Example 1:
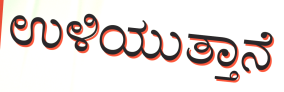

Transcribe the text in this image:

ಉಳಿಯುತ್ತಾನೆ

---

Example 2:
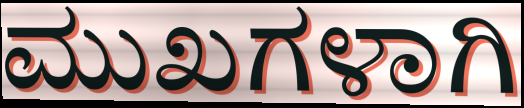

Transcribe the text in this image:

ಮುಖಗಳಾಗಿ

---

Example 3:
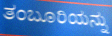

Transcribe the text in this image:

ತಂಬೂರಿಯನ್ನು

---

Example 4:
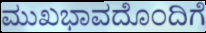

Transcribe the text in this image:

ಮುಖಭಾವದೊಂದಿಗೆ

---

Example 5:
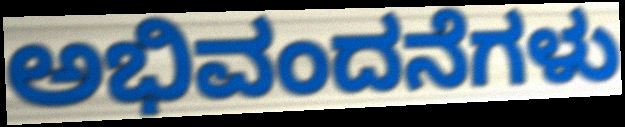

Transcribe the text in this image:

ಅಭಿವಂದನೆಗಳು